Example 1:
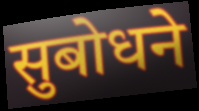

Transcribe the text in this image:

सुबोधने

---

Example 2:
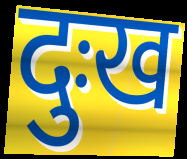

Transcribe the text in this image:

दुःख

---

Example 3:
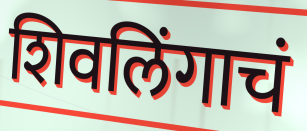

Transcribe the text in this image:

शिवलिंगाचं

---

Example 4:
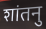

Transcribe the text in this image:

शांतनु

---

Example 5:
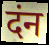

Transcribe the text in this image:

दंन